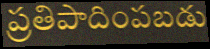
ప్రతిపాదింపబడు